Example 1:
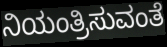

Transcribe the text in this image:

ನಿಯಂತ್ರಿಸುವಂತೆ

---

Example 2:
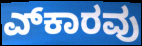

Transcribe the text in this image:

ಎ್‍ಕಾರವು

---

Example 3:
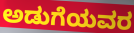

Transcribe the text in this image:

ಅಡುಗೆಯವರ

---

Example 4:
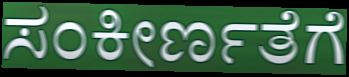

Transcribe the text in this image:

ಸಂಕೀರ್ಣತೆಗೆ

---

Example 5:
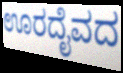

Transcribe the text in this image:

ಊರದೈವದ